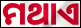
ମଥାଏ